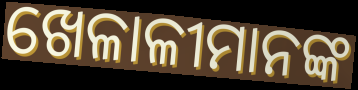
ଖେଳାଳୀମାନଙ୍କ